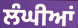
ਲੰਘੀਆਂ